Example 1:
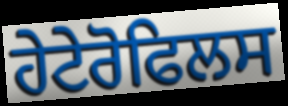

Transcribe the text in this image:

ਹੇਟੇਰੋਫਿਲਸ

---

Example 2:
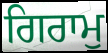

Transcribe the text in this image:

ਗਿਰਾਮੁ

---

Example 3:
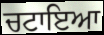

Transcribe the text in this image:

ਚਟਾਇਆ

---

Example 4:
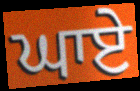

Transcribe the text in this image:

ਘਾਏ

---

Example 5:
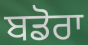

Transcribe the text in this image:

ਬਡੋਰਾ